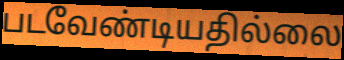
படவேண்டியதில்லை